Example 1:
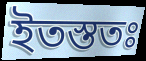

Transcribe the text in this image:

ইতস্ততঃ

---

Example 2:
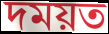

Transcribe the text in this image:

দময়ত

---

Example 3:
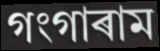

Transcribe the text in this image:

গংগাৰাম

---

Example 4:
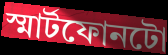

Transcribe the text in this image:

স্মাৰ্টফোনটো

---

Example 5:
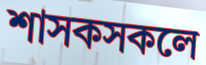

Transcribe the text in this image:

শাসকসকলে